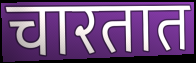
चारतात